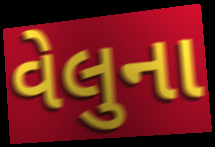
વેલુના